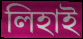
লিহাই